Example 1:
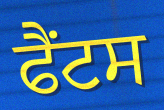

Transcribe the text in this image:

ਫੈਂਟਸ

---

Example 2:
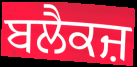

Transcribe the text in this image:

ਬਲੈਕਜ਼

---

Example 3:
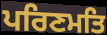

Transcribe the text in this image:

ਪਰਿਣਮਤਿ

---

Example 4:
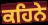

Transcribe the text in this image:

ਕਹਿਨੇ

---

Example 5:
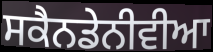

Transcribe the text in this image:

ਸਕੈਨਡੇਨੀਵੀਆ